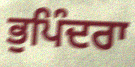
ਭੁਪਿੰਦਰਾ